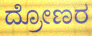
ದ್ರೋಣರ